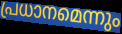
പ്രധാനമെന്നും